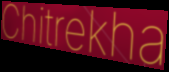
Chitrekha